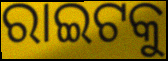
ରାଇଟକୁ